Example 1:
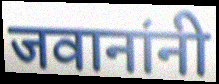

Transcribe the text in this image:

जवानांनी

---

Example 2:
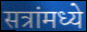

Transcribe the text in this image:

सत्रांमध्ये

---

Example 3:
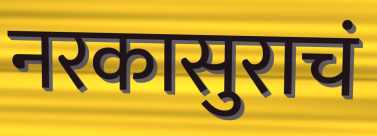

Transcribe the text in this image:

नरकासुराचं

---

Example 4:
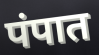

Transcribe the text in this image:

पंपात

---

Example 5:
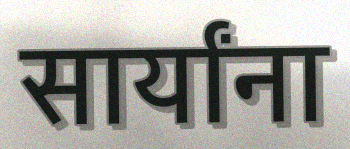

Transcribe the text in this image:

सार्यांना